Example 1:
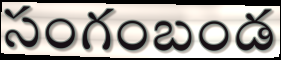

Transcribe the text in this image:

సంగంబండ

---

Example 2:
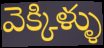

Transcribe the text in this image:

వెక్కిళ్ళు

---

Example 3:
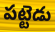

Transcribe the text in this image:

పట్టెడు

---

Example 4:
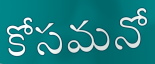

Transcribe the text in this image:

కోసమనో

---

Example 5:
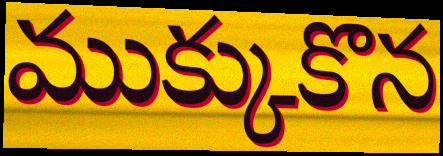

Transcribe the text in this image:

ముక్కుకొన